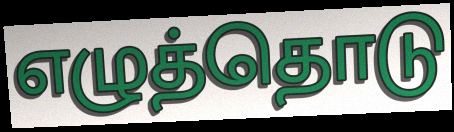
எழுத்தொடு